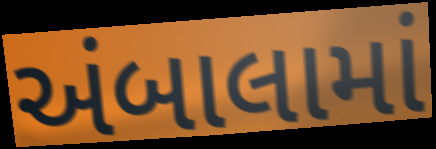
અંબાલામાં